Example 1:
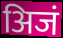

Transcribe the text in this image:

अिजं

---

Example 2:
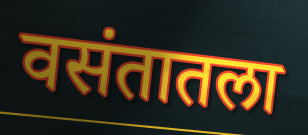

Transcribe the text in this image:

वसंतातला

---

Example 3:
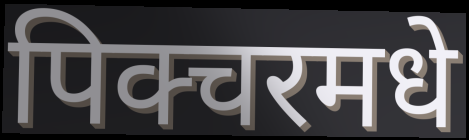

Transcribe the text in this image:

पिक्चरमधे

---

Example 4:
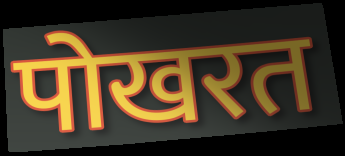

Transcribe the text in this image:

पोखरत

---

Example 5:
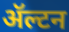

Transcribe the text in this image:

ॲल्टन